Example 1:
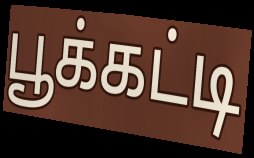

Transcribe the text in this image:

பூக்கட்டி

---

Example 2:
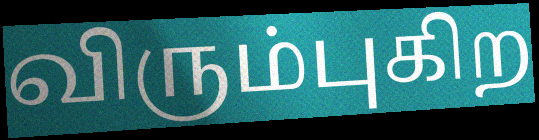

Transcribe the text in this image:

விரும்புகிற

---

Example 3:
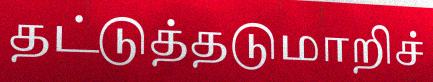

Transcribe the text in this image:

தட்டுத்தடுமாறிச்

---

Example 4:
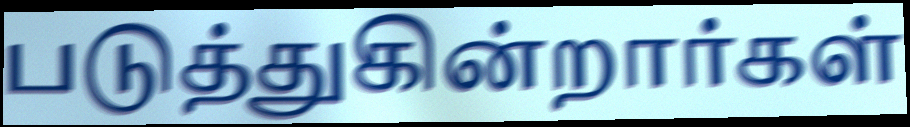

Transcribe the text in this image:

படுத்துகின்றார்கள்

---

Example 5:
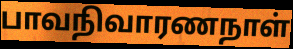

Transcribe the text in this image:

பாவநிவாரணநாள்